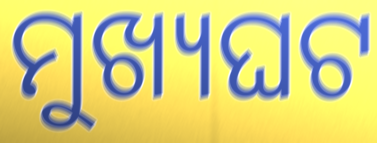
ମୁଖ୍ୟଘଟ